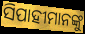
ସିପାହୀମାନଙ୍କୁ